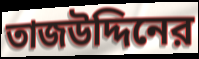
তাজউদ্দিনের